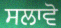
ਸਲਾਵੋ